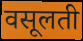
वसूलती